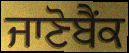
ਜਾਣੋਬੈਂਕ